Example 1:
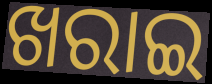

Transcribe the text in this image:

ଖରାଇ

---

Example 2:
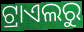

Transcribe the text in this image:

ଟ୍ରାଏଲରୁ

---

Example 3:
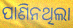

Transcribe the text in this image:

ପାଣିନଥିଲା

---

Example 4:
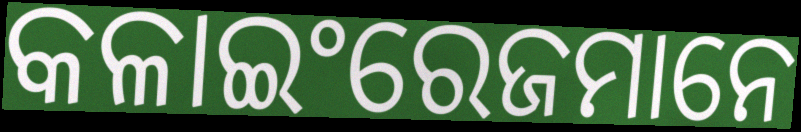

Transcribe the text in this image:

କଳାଇଂରେଜମାନେ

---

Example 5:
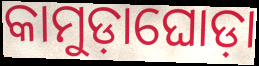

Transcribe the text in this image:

କାମୁଡ଼ାଘୋଡ଼ା